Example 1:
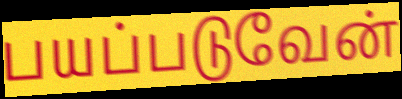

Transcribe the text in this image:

பயப்படுவேன்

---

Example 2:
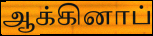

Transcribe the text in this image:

ஆக்கினாப்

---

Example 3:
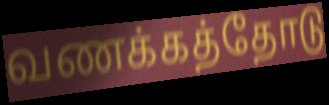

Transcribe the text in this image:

வணக்கத்தோடு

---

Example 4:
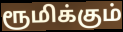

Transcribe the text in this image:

ரூமிக்கும்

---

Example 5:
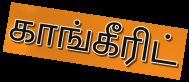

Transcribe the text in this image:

காங்கீரிட்